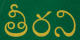
తీరని